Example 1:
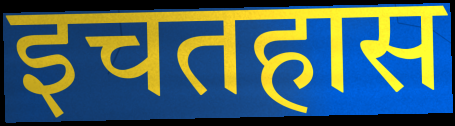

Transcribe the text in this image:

इचतहास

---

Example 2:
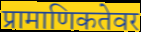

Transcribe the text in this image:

प्रामाणिकतेवर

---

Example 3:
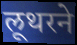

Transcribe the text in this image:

लूथरने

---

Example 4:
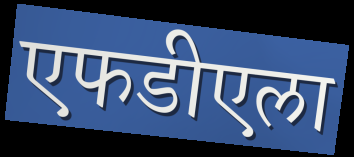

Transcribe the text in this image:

एफडीएला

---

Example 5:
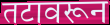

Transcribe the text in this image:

तटावरून